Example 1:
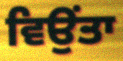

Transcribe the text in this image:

ਵਿਉਂਤਾ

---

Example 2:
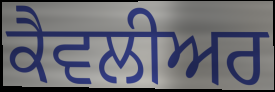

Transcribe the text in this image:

ਕੈਵਲੀਅਰ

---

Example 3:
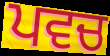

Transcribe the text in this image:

ਪਵਚ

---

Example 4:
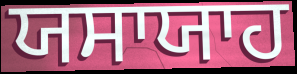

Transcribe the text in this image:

ਯਸਾਯਾਹ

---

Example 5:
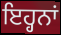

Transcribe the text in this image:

ਇਹ੍ਹਨਾਂ